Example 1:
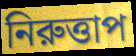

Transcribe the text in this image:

নিরুত্তাপ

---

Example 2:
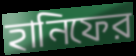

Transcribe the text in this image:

হানিফের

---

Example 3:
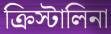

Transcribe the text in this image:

ক্রিস্টালিনা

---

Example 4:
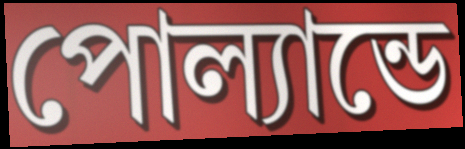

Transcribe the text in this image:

পোল্যান্ডে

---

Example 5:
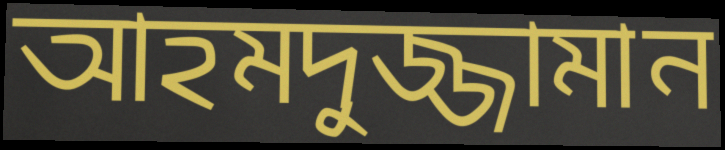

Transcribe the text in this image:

আহমদুজ্জামান